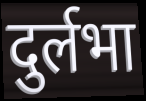
दुर्लभा